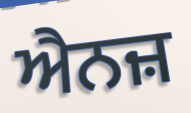
ਐਨਜ਼